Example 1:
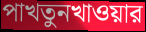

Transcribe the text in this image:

পাখতুনখাওয়ার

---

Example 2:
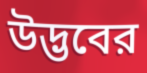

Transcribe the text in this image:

উদ্ভবের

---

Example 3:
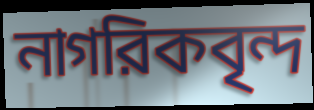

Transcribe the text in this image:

নাগরিকবৃন্দ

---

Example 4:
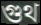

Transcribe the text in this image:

গুথ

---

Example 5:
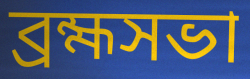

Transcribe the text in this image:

ব্রহ্মসভা